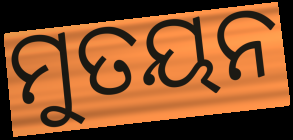
ମୁତୟନ